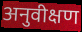
अनुवीक्षण